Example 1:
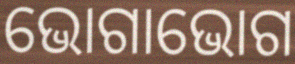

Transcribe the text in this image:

ଭୋଗାଭୋଗ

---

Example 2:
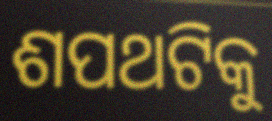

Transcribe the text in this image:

ଶପଥଟିକୁ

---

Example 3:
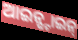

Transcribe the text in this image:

ଆଇନ୍ଷ୍ଟାଇନ୍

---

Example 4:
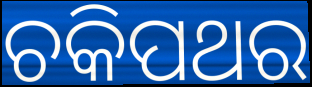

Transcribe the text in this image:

ଚକିପଥର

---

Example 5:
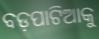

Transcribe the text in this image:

ବଡ଼ପାଟିଆକୁ